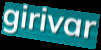
girivar